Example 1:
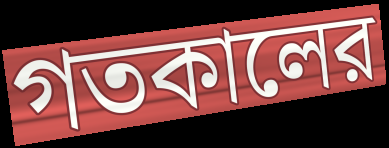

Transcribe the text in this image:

গতকালের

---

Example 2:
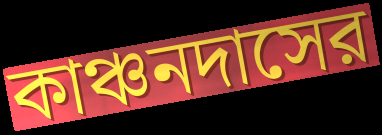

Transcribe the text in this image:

কাঞ্চনদাসের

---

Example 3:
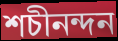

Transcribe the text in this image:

শচীনন্দন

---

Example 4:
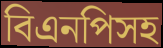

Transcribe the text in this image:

বিএনপিসহ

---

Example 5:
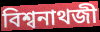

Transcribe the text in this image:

বিশ্বনাথজী